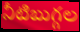
నీటిబుగ్గల